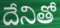
దేనితో